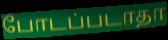
போடப்படாதா